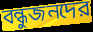
বন্ধুজনদের